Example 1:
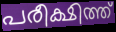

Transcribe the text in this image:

പരീക്ഷിത്ത്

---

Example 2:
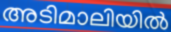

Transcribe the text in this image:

അടിമാലിയിൽ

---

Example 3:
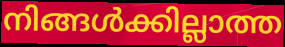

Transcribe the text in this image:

നിങ്ങൾക്കില്ലാത്ത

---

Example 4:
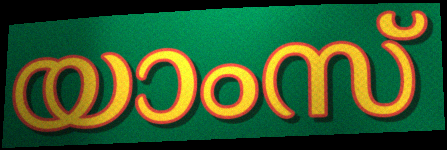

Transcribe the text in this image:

യാംസ്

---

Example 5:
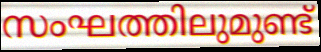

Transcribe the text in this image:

സംഘത്തിലുമുണ്ട്